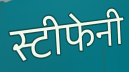
स्टीफेनी